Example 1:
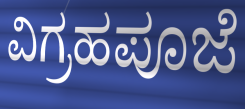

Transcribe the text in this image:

ವಿಗ್ರಹಪೂಜೆ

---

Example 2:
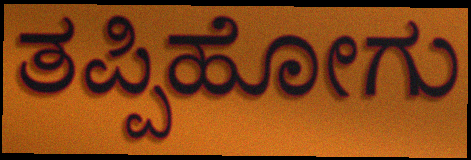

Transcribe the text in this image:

ತಪ್ಪಿಹೋಗು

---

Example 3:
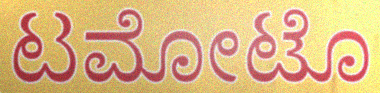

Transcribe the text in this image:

ಟಮೋಟೊ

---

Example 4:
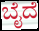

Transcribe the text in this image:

ಬೈದೆ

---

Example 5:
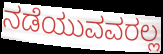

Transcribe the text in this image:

ನಡೆಯುವವರಲ್ಲ